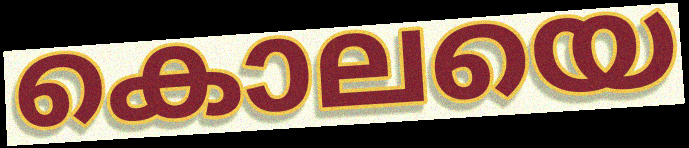
കൊലയെ